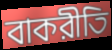
বাকরীতি